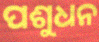
ପଶୁଧନ